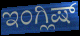
ಇಂಗ್ಲಿಷ್